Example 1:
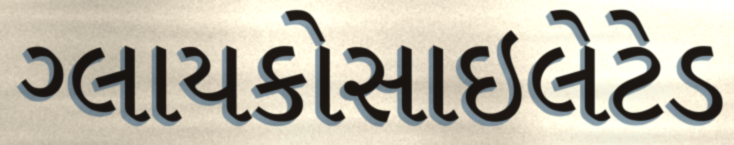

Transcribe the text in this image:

ગ્લાયકોસાઇલેટેડ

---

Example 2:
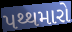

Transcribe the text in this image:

પથ્થમારો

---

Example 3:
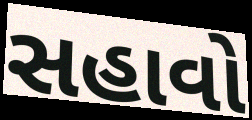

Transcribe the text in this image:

સહાવો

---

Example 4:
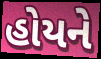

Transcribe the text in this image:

હોયને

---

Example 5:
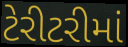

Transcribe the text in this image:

ટેરીટરીમાં